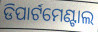
ଡିପାର୍ଟମେଣ୍ଟାଲ